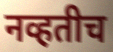
नव्हतीच